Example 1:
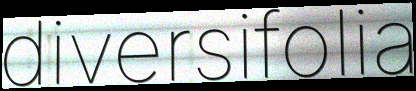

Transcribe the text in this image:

diversifolia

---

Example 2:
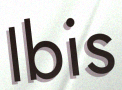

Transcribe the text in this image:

Ibis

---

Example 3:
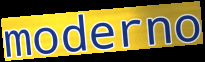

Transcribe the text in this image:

moderno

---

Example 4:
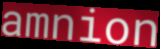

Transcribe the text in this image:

amnion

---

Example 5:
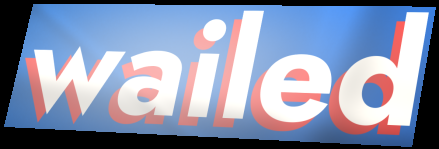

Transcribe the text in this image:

wailed